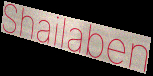
Shailaben